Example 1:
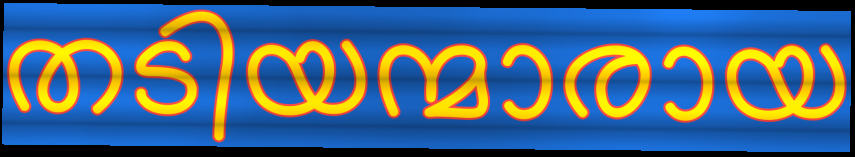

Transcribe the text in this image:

തടിയന്മാരായ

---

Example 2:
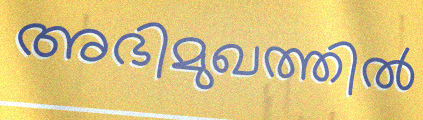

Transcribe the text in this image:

അഭിമുഖത്തിൽ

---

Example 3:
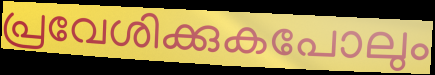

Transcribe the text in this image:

പ്രവേശിക്കുകപോലും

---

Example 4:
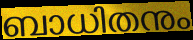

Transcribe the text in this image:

ബാധിതനും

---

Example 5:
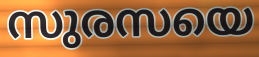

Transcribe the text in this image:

സുരസയെ